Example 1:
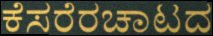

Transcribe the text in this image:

ಕೆಸರೆರಚಾಟದ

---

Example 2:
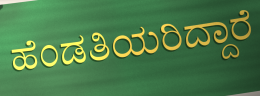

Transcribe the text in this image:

ಹೆಂಡತಿಯರಿದ್ದಾರೆ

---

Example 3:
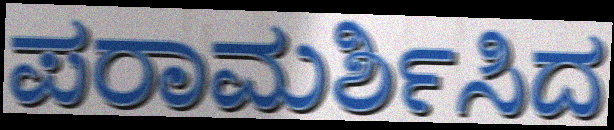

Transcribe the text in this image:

ಪರಾಮರ್ಶಿಸಿದ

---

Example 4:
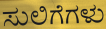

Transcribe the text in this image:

ಸುಲಿಗೆಗಳು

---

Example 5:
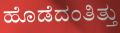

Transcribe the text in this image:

ಹೊಡೆದಂತಿತ್ತು